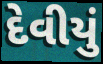
દેવીયું